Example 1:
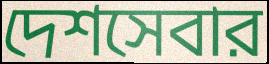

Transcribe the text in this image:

দেশসেবার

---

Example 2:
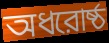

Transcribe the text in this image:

অধরোষ্ঠ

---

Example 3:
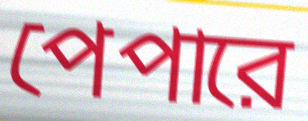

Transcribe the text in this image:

পেপারে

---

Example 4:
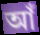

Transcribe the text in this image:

আঁ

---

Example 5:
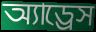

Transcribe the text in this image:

অ্যাড্রেস